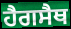
ਹੈਗਸੈਥ